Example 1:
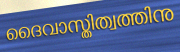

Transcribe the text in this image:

ദൈവാസ്തിത്വത്തിനു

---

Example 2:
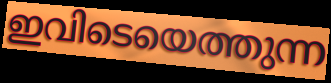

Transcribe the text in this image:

ഇവിടെയെത്തുന്ന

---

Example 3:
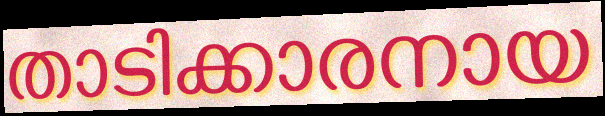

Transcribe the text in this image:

താടിക്കാരനായ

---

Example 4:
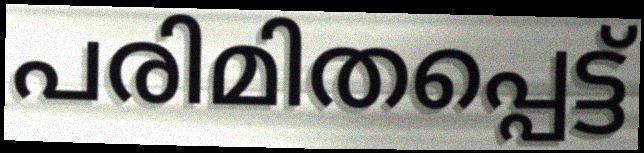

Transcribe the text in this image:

പരിമിതപ്പെട്ട്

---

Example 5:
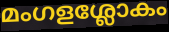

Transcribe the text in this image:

മംഗളശ്ലോകം